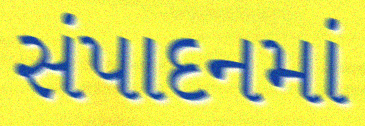
સંપાદનમાં